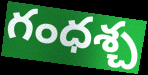
గంధశ్చ